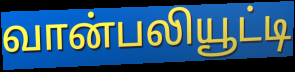
வான்பலியூட்டி